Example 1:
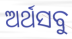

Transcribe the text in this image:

ଅର୍ଥସବୁ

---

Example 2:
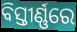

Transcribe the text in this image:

ବିସ୍ତୀର୍ଣ୍ଣରେ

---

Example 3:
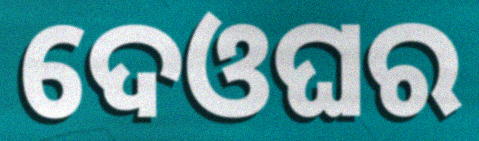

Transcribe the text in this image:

ଦେଓଘର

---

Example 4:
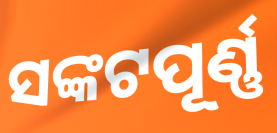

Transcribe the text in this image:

ସଙ୍କଟପୂର୍ଣ୍ଣ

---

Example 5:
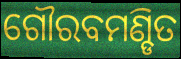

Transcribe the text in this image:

ଗୌରବମଣ୍ଡିତ